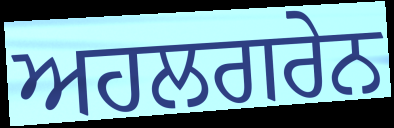
ਅਹਲਗਰੇਨ